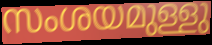
സംശയമുള്ളു